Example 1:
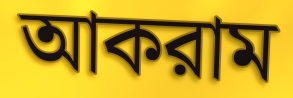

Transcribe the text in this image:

আকরাম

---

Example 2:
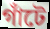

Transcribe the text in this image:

গাঁটে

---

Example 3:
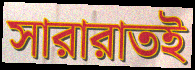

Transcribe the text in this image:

সারারাতই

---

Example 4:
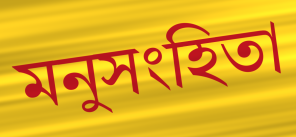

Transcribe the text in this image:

মনুসংহিতা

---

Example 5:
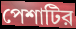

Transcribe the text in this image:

পেশাটির